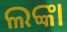
ଲଙ୍କା